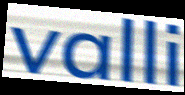
valli